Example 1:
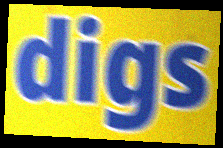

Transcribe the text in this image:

digs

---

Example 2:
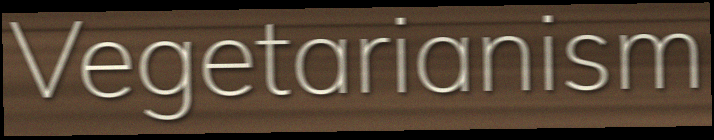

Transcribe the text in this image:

Vegetarianism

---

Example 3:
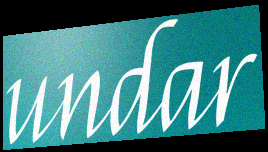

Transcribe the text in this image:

undar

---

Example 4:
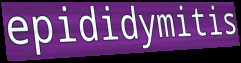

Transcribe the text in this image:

epididymitis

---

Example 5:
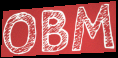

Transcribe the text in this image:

OBM